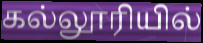
கல்லூரியில்